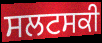
ਸਲਟਸਕੀ